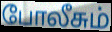
போலீசும்